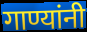
गाण्यांनी